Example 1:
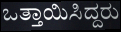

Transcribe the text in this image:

ಒತ್ತಾಯಿಸಿದ್ದರು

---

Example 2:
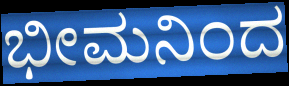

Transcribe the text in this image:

ಭೀಮನಿಂದ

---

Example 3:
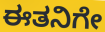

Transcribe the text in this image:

ಈತನಿಗೇ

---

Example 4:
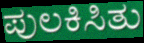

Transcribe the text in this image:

ಪುಲಕಿಸಿತು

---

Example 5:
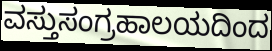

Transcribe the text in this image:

ವಸ್ತುಸಂಗ್ರಹಾಲಯದಿಂದ